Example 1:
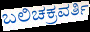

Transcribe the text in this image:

ಬಲಿಚಕ್ರವರ್ತಿ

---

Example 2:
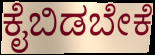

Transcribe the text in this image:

ಕೈಬಿಡಬೇಕೆ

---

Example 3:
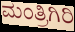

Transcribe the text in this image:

ಮಂತ್ರಿಗಿರಿ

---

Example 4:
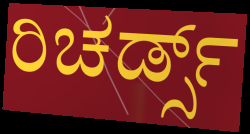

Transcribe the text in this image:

ರಿಚರ್ಡ್ಸ್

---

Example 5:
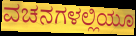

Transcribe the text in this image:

ವಚನಗಳಲ್ಲಿಯೂ